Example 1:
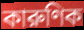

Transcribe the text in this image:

কারুণিক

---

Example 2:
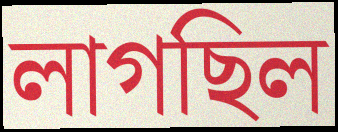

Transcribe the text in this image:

লাগছিল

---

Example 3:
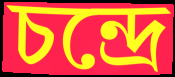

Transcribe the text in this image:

চন্দ্রে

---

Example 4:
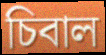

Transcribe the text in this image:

চিবাল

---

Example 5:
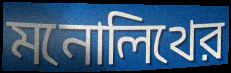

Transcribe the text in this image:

মনোলিথের